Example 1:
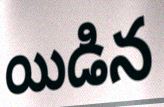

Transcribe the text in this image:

యిడిన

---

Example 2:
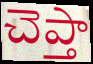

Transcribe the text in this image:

చెప్తా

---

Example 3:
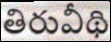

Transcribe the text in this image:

తిరువీథి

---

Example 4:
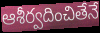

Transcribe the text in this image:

ఆశీర్వదించితేనే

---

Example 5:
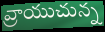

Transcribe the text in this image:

వ్రాయుచున్న